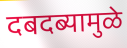
दबदब्यामुळे